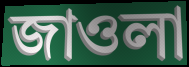
জাওলা